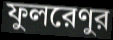
ফুলরেণুর